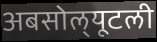
अबसोल्यूटली